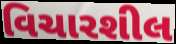
વિચારશીલ